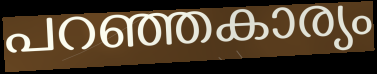
പറഞ്ഞകാര്യം